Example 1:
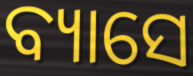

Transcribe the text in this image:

ବ୍ୟାସେ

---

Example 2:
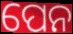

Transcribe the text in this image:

ପେନ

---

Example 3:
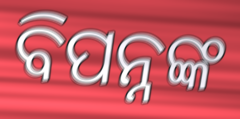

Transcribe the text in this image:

ବିପନ୍ନଙ୍କ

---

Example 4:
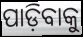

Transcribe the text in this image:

ପାଡ଼ିବାକୁ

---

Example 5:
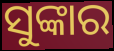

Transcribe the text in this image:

ସୁଙ୍କାର